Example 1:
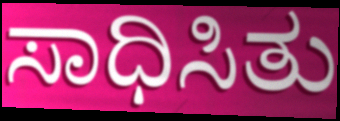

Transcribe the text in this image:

ಸಾಧಿಸಿತು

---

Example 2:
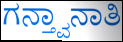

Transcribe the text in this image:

ಗನ್ತ್ವಾನಾತಿ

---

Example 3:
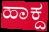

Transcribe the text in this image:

ಹಾಕ್ದ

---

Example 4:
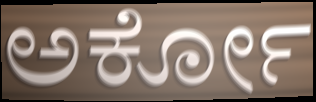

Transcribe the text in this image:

ಅರ್ಕೋ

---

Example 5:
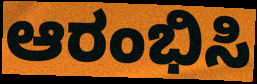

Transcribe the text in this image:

ಆರಂಭಿಸಿ